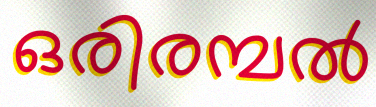
ഒരിരമ്പൽ